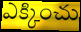
ఎక్కించు